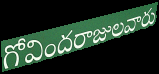
గోవిందరాజులవారు